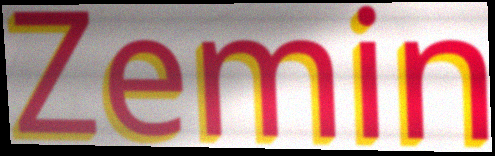
Zemin